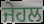
ਜੇਹਲ